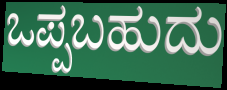
ಒಪ್ಪಬಹುದು